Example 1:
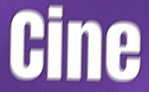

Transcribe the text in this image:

Cine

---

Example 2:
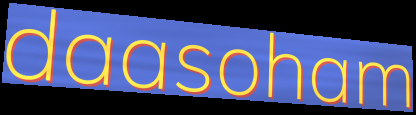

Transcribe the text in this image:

daasoham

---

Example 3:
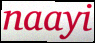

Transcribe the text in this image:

naayi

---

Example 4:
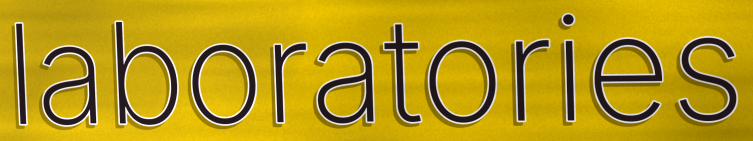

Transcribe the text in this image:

laboratories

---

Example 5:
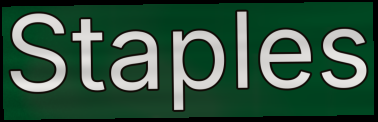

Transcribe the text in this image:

Staples